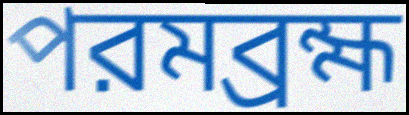
পরমব্রহ্ম